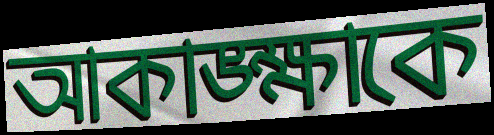
আকাঙ্ক্ষাকে